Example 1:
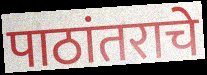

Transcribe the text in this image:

पाठांतराचे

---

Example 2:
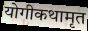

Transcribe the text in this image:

योगीकथामृत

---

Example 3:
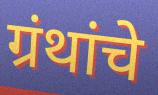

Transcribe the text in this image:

ग्रंथांचे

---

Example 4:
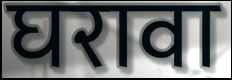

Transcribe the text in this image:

घरावा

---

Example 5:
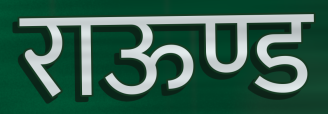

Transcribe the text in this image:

राऊण्ड